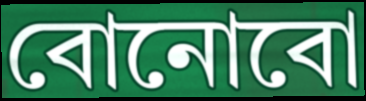
বোনোবো